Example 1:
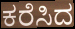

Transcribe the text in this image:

ಕರೆಸಿದ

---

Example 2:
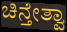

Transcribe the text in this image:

ಚಿನ್ತೇತ್ವಾ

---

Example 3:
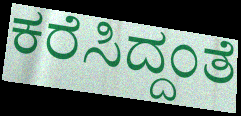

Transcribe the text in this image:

ಕರೆಸಿದ್ದಂತೆ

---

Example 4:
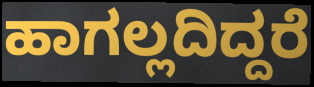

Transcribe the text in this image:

ಹಾಗಲ್ಲದಿದ್ದರೆ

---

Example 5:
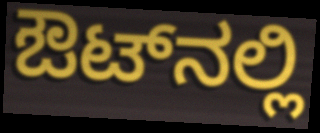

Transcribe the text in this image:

ಔಟ್‌ನಲ್ಲಿ